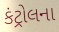
કંટ્રોલના